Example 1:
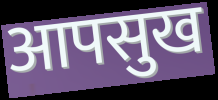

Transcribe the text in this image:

आपसुख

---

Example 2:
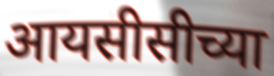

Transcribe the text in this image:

आयसीसीच्या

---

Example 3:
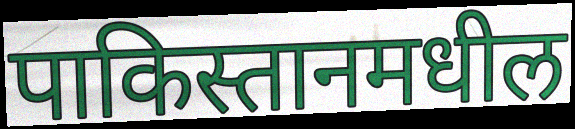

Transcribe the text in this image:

पाकिस्तानमधील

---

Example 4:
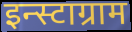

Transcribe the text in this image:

इन्स्टाग्राम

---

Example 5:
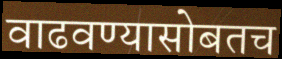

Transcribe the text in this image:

वाढवण्यासोबतच